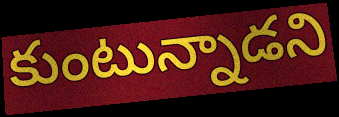
కుంటున్నాడని